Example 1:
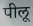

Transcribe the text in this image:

पीलू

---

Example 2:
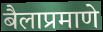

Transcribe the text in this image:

बैलाप्रमाणे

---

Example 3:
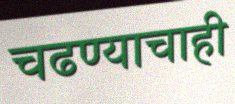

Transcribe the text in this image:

चढण्याचाही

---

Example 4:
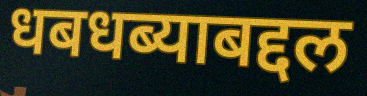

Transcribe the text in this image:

धबधब्याबद्दल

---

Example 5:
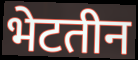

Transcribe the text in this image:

भेटतीन